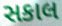
સકાલ